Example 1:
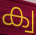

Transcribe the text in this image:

ക്വ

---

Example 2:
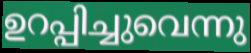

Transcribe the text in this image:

ഉറപ്പിച്ചുവെന്നു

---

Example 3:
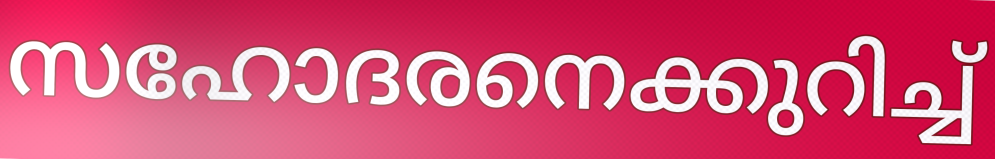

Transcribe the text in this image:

സഹോദരനെക്കുറിച്ച്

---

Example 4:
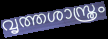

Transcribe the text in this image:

വൃത്തശാസ്ത്രം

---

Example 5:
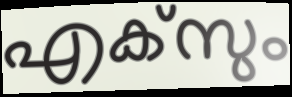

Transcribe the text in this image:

എക്‌സും